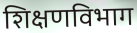
शिक्षणविभाग